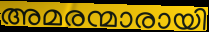
അമരന്മാരായി